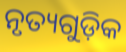
ନୃତ୍ୟଗୁଡ଼ିକ